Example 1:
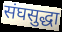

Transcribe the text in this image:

संघसुद्धा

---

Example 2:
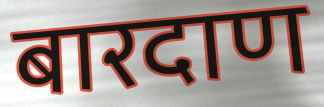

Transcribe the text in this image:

बारदाण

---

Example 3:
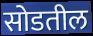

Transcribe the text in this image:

सोडतील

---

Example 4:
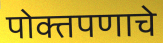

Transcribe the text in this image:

पोक्तपणाचे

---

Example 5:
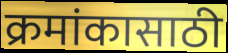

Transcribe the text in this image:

क्रमांकासाठी